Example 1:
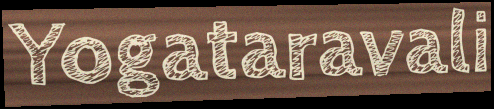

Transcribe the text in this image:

Yogataravali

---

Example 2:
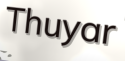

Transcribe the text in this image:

Thuyar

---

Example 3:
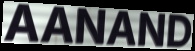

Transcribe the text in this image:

AANAND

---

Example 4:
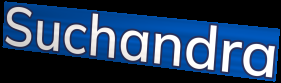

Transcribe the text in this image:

Suchandra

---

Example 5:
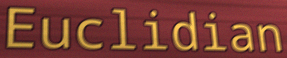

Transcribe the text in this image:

Euclidian